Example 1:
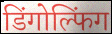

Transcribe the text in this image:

डिंगोल्फिंग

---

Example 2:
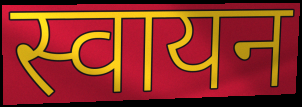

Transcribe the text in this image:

स्वायन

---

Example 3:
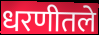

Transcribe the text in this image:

धरणीतले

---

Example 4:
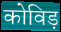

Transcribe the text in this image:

कोविड़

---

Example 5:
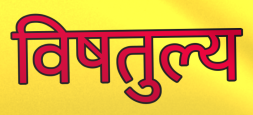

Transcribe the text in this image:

विषतुल्य